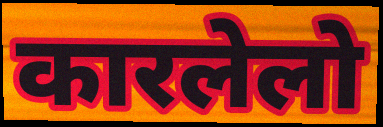
कारलेलो